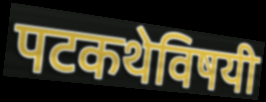
पटकथेविषयी